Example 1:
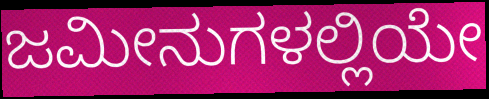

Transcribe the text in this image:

ಜಮೀನುಗಳಲ್ಲಿಯೇ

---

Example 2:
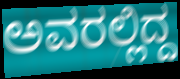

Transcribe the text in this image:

ಅವರಲ್ಲಿದ್ದ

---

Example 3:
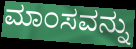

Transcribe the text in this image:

ಮಾಂಸವನ್ನು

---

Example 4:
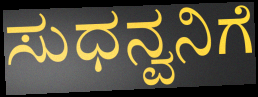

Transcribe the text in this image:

ಸುಧನ್ವನಿಗೆ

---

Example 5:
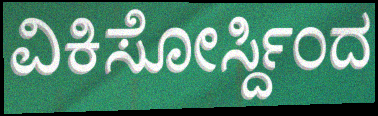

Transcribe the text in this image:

ವಿಕಿಸೋರ್ಸ್ದಿಂದ